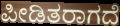
ಪೀಡಿತರಾಗದೆ